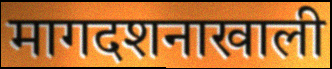
मागदशनाखाली